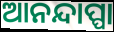
ଆନନ୍ଦାପ୍ପା